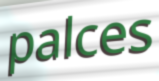
palces